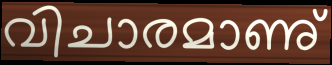
വിചാരമാണു്